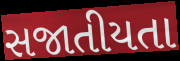
સજાતીયતા